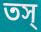
তস্